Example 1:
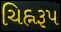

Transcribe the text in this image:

ચિહ્નરૂપ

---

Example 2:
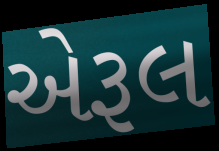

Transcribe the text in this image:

એરૂલ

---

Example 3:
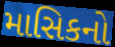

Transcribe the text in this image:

માસિકનો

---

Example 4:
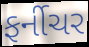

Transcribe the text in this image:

ફર્નીચર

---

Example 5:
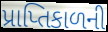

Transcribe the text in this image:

પ્રાપ્તિકાળની